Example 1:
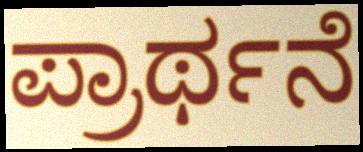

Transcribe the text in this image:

ಪ್ರಾರ್ಥನೆ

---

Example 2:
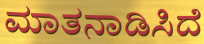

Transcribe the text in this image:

ಮಾತನಾಡಿಸಿದೆ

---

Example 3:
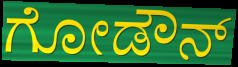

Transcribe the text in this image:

ಗೋಡೌನ್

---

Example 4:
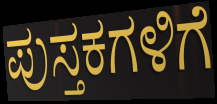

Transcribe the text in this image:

ಪುಸ್ತಕಗಳಿಗೆ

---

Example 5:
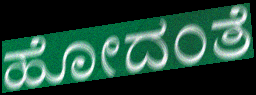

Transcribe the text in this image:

ಹೋದಂತೆ